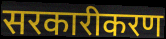
सरकारीकरण